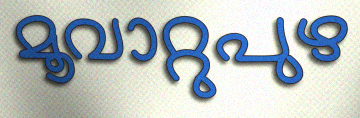
മൂവാറ്റുപുഴ